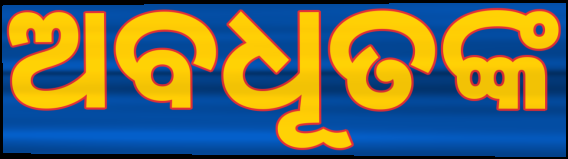
ଅବଧୂତଙ୍କ